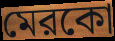
মেরকো